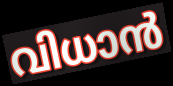
വിധാൻ